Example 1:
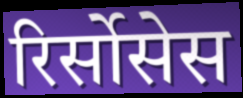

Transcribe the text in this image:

रिर्सोसेस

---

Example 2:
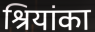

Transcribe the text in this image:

श्रियांका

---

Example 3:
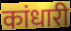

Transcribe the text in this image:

कांधारी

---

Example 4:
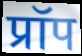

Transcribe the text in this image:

प्रॉप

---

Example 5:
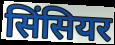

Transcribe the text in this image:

सिंसियर